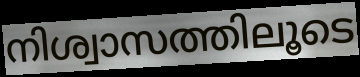
നിശ്വാസത്തിലൂടെ